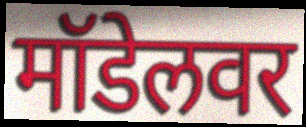
मॉडेलवर